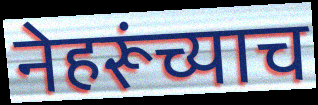
नेहरूंच्याच